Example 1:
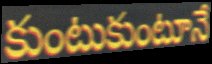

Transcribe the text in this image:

కుంటుకుంటూనే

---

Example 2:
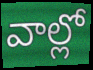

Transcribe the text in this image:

వాల్లో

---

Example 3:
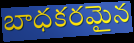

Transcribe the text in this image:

బాధకరమైన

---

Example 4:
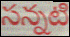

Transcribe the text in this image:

సన్నటి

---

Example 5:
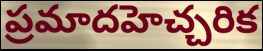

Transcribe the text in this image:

ప్రమాదహెచ్చరిక